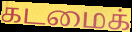
கடமைக்